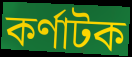
কৰ্ণাটক